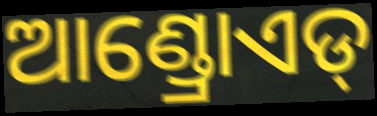
ଆଣ୍ଡ୍ରୋଏଡ୍